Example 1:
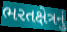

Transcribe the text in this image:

ભરતક્ષેત્રનું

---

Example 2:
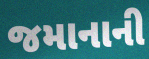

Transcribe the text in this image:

જમાનાની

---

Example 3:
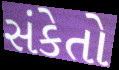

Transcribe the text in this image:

સંકેતો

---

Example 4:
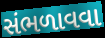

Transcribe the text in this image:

સંભળાવવા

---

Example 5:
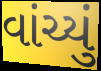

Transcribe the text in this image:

વાંચ્યું